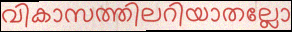
വികാസത്തിലറിയാതല്ലോ